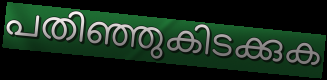
പതിഞ്ഞുകിടക്കുക